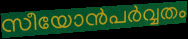
സീയോൻപർവ്വതം